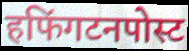
हफिंगटनपोस्ट